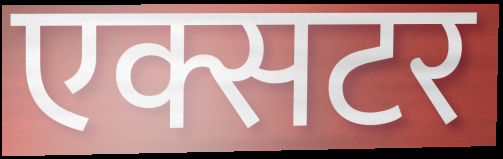
एक्सटर